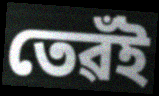
তেৱঁই